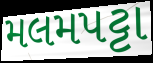
મલમપટ્ટા